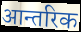
आन्तरिक